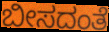
ಬೀಸದಂತೆ